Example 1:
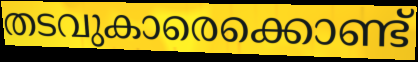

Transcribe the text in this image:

തടവുകാരെക്കൊണ്ട്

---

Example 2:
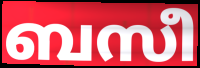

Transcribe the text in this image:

ബസീ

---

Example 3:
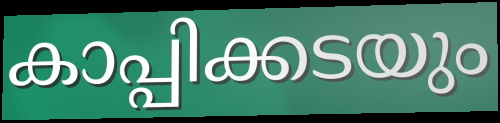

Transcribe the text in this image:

കാപ്പിക്കടയും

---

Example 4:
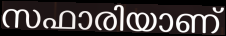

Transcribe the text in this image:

സഫാരിയാണ്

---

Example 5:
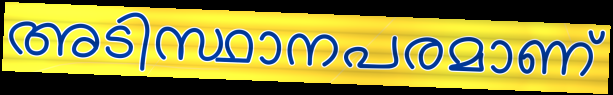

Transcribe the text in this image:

അടിസ്ഥാനപരമാണ്